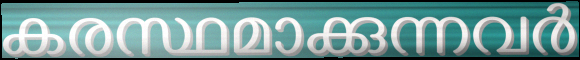
കരസ്ഥമാക്കുന്നവർ